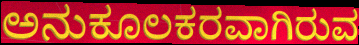
ಅನುಕೂಲಕರವಾಗಿರುವ